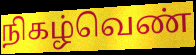
நிகழ்வெண்